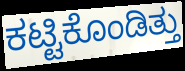
ಕಟ್ಟಿಕೊಂಡಿತ್ತು